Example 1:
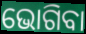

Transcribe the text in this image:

ଭୋଗିବା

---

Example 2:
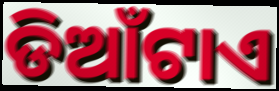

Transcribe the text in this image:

ଡିଆଁଟାଏ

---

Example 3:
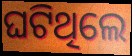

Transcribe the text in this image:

ଘଟିଥିଲେ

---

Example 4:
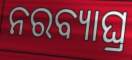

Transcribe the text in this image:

ନରବ୍ୟାଘ୍ର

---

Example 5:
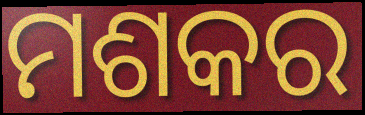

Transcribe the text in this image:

ମଶକର